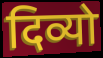
दिव्यो